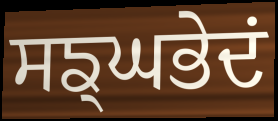
ਸਙ੍ਘਭੇਦਂ